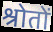
श्रोतों